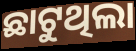
ଛାଟୁଥିଲା